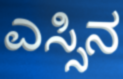
ಎಸ್ಸಿನ